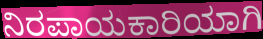
ನಿರಪಾಯಕಾರಿಯಾಗಿ